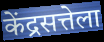
केंद्रसत्तेला